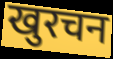
खुरचन